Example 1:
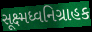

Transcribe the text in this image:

સૂક્ષ્મધ્વનિગ્રાહક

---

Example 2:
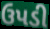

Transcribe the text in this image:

ઉપડી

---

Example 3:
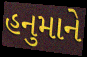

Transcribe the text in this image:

હનુમાને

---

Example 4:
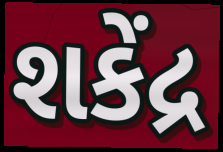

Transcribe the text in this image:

શકેંદ્ર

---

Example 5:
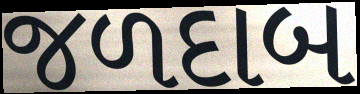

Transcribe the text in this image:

જળદાબ